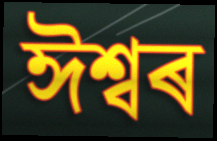
ঈশ্বৰ